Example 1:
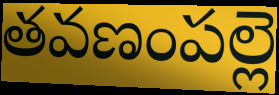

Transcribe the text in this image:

తవణంపల్లె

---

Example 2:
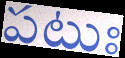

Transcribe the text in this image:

పటుః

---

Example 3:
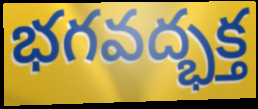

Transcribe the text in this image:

భగవద్భక్త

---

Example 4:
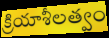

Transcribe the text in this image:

క్రియాశీలత్వం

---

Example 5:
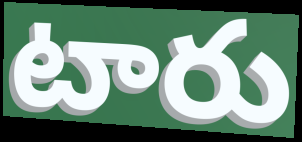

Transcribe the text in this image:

టారు